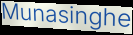
Munasinghe